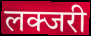
लक्जरी